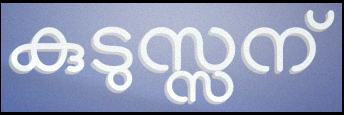
കുടുസ്സന്